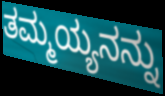
ತಮ್ಮಯ್ಯನನ್ನು